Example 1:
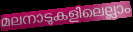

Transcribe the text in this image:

മലനാടുകളിലെല്ലാം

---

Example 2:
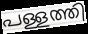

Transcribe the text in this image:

പള്ളത്തി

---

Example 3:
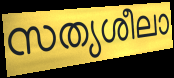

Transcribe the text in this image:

സത്യശീലാ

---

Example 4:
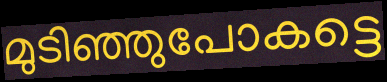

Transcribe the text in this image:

മുടിഞ്ഞുപോകട്ടെ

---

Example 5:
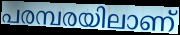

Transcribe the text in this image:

പരമ്പരയിലാണ്